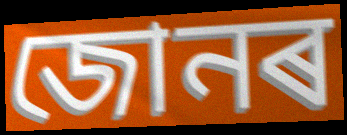
জোনৰ